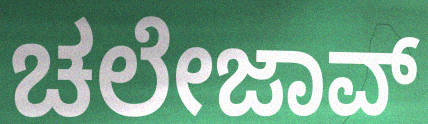
ಚಲೇಜಾವ್